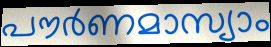
പൗർണമാസ്യാം